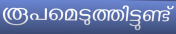
രൂപമെടുത്തിട്ടുണ്ട്